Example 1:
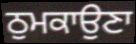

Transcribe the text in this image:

ਠੁਮਕਾਉਣਾ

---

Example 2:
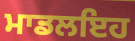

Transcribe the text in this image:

ਮਾਡਲਇਹ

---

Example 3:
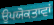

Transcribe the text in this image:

ਉਪਯੋਕਤਾਵਾਂ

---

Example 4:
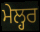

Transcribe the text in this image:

ਮੇਲ੍ਹਰ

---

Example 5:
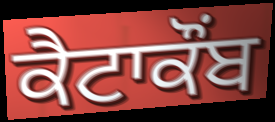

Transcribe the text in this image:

ਕੈਟਾਕੌਂਬ